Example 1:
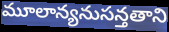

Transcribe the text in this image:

మూలాన్యనుసన్తతాని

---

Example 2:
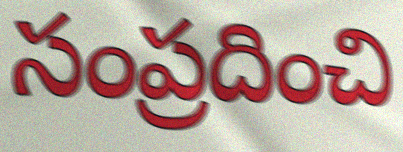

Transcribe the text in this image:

సంప్రదించి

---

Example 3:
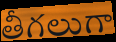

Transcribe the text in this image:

తీగలుగా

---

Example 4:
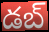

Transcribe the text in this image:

డబ్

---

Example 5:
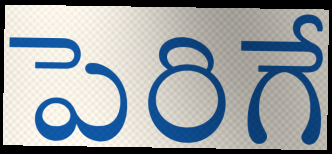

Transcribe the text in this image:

పెరిగే